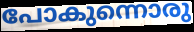
പോകുന്നൊരു